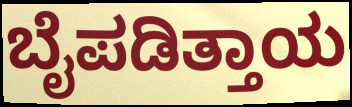
ಬೈಪಡಿತ್ತಾಯ